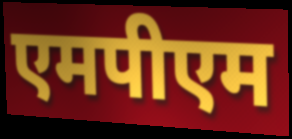
एमपीएम